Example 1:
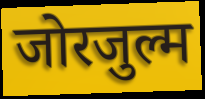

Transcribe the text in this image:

जोरजुल्म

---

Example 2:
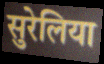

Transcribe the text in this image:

सुरेलिया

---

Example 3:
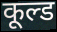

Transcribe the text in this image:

कूल्ड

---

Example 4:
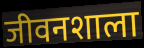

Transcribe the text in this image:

जीवनशाला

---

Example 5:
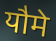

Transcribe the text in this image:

यौमे